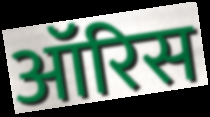
ऑरिस